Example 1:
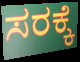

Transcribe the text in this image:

ಸರಕ್ಕೆ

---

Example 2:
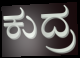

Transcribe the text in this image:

ಕುದ್ರ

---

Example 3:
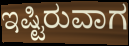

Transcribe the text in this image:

ಇಷ್ಟಿರುವಾಗ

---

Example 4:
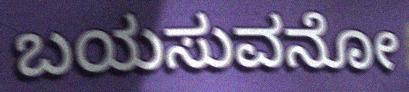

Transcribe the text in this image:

ಬಯಸುವನೋ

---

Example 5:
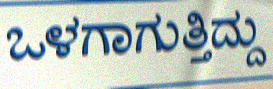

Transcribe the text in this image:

ಒಳಗಾಗುತ್ತಿದ್ದು